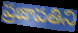
ప్రజాపతిని